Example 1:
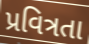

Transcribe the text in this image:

પ્રવિત્રતા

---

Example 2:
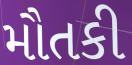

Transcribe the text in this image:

મૌતકી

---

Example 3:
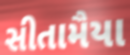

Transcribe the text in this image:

સીતામૈયા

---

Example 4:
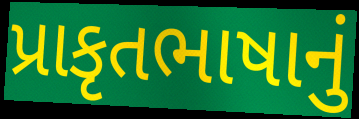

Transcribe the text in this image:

પ્રાકૃતભાષાનું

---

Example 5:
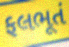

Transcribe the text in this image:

ફલભૂતં